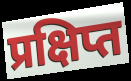
प्रक्षिप्त